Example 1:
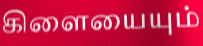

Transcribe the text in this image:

கிளையையும்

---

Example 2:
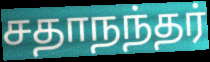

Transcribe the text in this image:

சதாநந்தர்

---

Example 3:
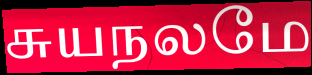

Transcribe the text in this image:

சுயநலமே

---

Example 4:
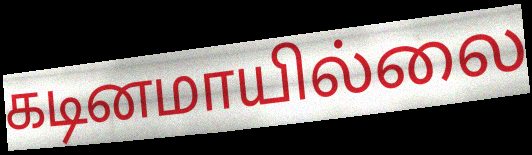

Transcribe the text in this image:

கடினமாயில்லை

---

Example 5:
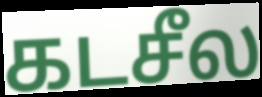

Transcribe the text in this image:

கடசீல